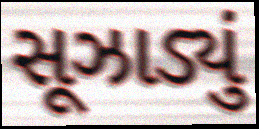
સૂઝાડ્યું